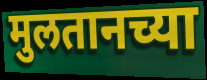
मुलतानच्या